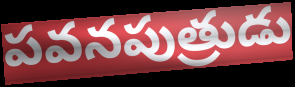
పవనపుత్రుడు